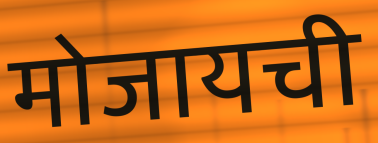
मोजायची